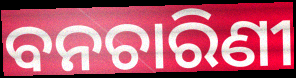
ବନଚାରିଣୀ